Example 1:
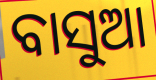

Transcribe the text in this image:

ବାସୁଆ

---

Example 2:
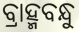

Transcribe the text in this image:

ବ୍ରାହ୍ମବନ୍ଧୁ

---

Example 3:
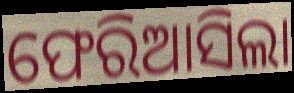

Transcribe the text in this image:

ଫେରିଆସିଲା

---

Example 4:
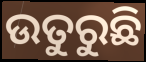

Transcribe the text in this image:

ଉତୁରୁଛି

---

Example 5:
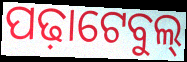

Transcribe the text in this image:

ପଢ଼ାଟେବୁଲ୍